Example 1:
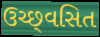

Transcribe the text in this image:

ઉચ્છ્‌વસિત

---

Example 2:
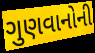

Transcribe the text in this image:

ગુણવાનોની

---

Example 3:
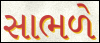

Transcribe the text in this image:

સાભળે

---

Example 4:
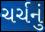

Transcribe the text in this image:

ચર્ચનું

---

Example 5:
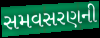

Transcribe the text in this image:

સમવસરણની